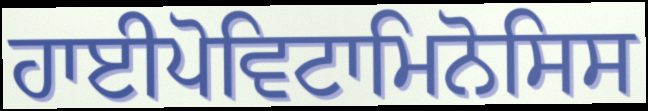
ਹਾਈਪੋਵਿਟਾਮਿਨੋਸਿਸ